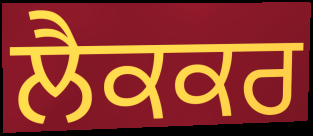
ਲੈਕਕਰ